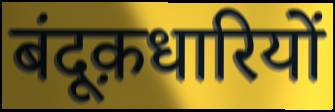
बंदूक़धारियों